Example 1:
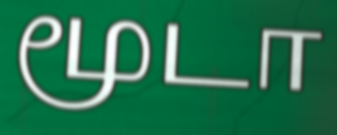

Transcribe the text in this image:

மூடா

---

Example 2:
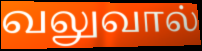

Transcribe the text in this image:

வலுவால்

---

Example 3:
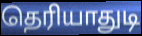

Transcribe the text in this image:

தெரியாதுடி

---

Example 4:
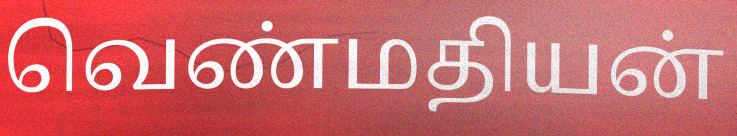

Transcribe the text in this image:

வெண்மதியன்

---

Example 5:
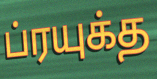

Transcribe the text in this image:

ப்ரயுக்த